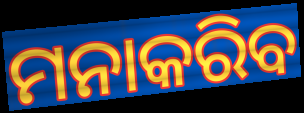
ମନାକରିବ